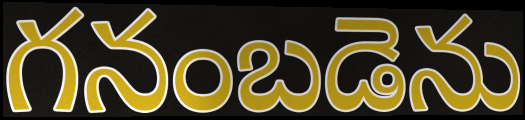
గనంబడెను